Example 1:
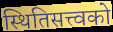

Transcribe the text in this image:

स्थितिसत्त्वको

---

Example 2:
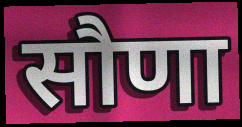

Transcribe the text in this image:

सौणा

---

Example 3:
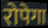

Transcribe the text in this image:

रोपेगा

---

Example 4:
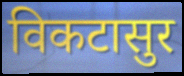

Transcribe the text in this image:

विकटासुर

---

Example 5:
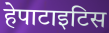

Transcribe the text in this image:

हेपाटाइटिस